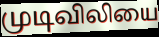
முடிவிலியை